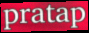
pratap